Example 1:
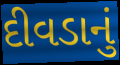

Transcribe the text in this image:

દીવડાનું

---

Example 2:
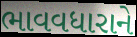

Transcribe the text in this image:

ભાવવધારાને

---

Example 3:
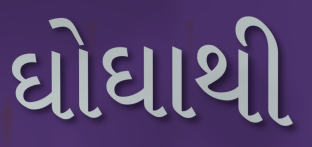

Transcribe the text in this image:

ઘોઘાથી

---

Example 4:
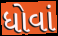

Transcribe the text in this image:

ધોવાં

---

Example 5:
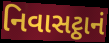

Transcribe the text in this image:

નિવાસટ્ઠાનં